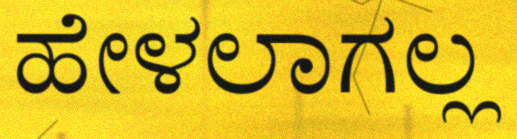
ಹೇಳಲಾಗಲ್ಲ